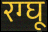
रग्घू